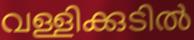
വള്ളിക്കുടിൽ